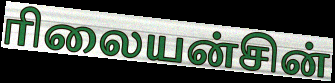
ரிலையன்சின்